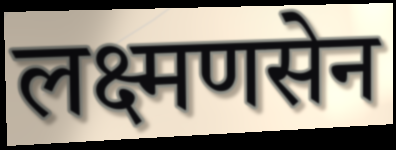
लक्ष्मणसेन